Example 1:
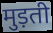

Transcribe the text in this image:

मुड़ती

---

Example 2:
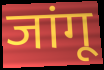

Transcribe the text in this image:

जांगू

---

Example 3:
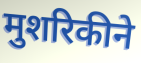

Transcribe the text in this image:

मुशरिकीने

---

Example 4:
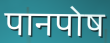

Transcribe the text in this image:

पानपोष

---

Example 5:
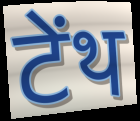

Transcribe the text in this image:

टेंथ